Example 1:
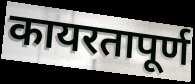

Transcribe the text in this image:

कायरतापूर्ण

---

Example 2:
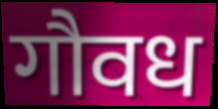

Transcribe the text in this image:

गौवध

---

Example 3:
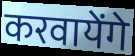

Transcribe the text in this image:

करवायेंगे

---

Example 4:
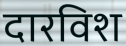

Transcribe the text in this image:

दारविश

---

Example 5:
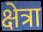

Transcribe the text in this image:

क्षेत्रा